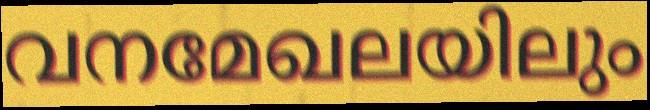
വനമേഖലയിലും